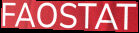
FAOSTAT